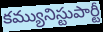
కమ్యునిస్టుపార్టీ